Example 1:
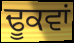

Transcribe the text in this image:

ਢੂਕਵਾਂ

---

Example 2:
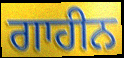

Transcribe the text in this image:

ਗਾਹੀਨ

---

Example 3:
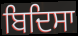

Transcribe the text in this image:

ਬਿਦਿਸਾ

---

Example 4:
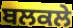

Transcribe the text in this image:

ਬਲਕਲੇ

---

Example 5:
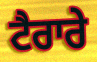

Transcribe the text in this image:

ਟੈਰਾਰੇ